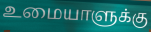
உமையாளுக்கு